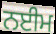
ਨਈਮ